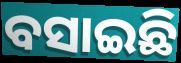
ବସାଇଛି